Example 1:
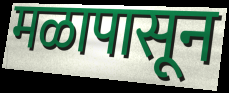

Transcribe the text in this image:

मळापासून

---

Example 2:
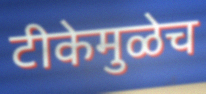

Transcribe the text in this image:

टीकेमुळेच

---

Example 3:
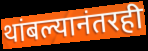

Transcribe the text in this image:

थांबल्यानंतरही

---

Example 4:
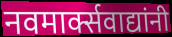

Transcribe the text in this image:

नवमार्क्सवाद्यांनी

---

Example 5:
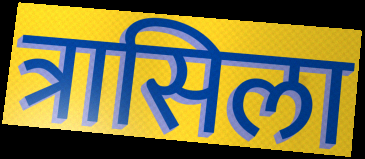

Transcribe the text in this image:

त्रासिला